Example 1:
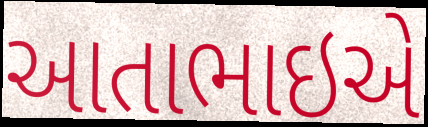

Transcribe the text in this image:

આતાભાઇએ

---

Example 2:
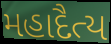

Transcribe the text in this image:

મહાદૈત્ય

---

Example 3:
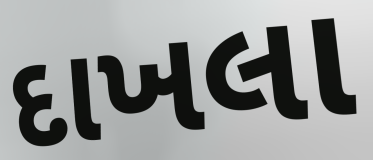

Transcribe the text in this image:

દાખલા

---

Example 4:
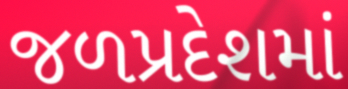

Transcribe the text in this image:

જળપ્રદેશમાં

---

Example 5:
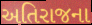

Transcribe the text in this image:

અતિરાજના